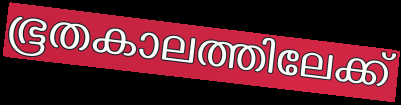
ഭൂതകാലത്തിലേക്ക്